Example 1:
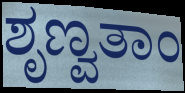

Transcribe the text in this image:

ಶೃಣ್ವತಾಂ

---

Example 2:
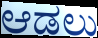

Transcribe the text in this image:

ಆಡಲು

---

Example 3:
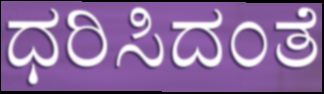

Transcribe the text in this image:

ಧರಿಸಿದಂತೆ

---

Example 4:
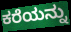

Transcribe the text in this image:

ಕರೆಯನ್ನು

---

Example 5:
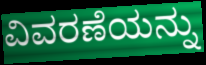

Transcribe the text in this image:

ವಿವರಣೆಯನ್ನು